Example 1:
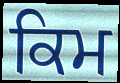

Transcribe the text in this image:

ਕਿਮ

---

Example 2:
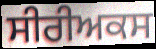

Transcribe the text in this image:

ਸੀਰੀਅਕਸ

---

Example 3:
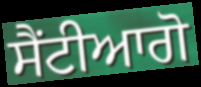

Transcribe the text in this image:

ਸੈਂਟੀਆਗੋ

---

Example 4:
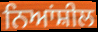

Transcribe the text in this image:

ਨਿਆਂਸ਼ੀਲ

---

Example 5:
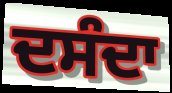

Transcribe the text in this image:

ਦਸੰਦਾ